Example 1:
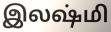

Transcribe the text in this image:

இலஷ்மி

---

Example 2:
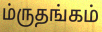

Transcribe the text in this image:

ம்ருதங்கம்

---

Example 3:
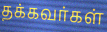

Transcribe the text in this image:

தக்கவர்கள்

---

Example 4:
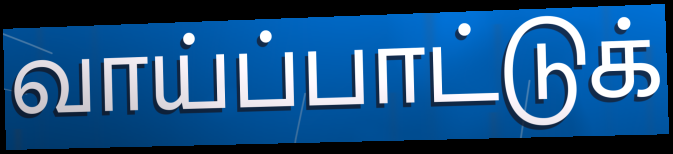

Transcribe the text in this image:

வாய்ப்பாட்டுக்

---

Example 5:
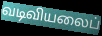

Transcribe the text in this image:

வடிவியலைப்